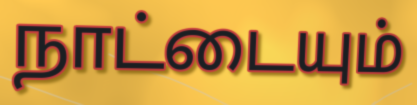
நாட்டையும்